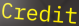
Credit